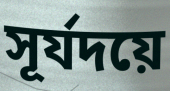
সূর্যদয়ে